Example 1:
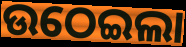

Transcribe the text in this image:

ଉଠେଇଲା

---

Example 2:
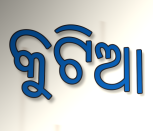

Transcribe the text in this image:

କୁଟିଆ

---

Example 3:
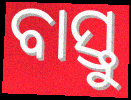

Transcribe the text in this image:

ବାସ୍ତୁ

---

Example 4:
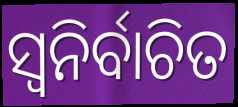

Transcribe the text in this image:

ସ୍ବନିର୍ବାଚିତ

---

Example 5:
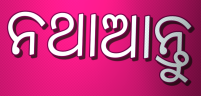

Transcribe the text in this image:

ନଥାଆନ୍ତୁ